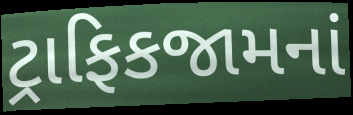
ટ્રાફિકજામનાં